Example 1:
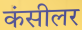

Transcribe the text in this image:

कंसीलर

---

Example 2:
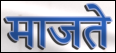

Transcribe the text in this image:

माजते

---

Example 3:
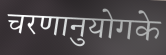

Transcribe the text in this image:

चरणानुयोगके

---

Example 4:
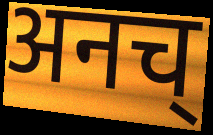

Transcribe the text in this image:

अनच्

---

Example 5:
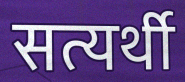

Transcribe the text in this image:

सत्यर्थी